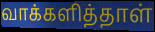
வாக்களித்தாள்